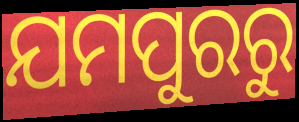
ଯମପୁରରୁ